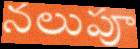
నలుపూ